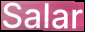
Salar